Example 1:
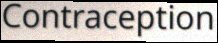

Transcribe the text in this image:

Contraception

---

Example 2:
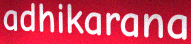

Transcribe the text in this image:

adhikarana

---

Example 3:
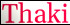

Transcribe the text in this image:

Thaki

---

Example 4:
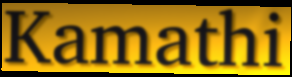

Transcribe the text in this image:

Kamathi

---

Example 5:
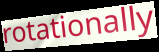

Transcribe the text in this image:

rotationally